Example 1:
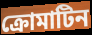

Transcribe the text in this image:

ক্রোমাটিন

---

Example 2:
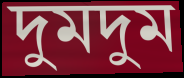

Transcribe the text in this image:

দুমদুম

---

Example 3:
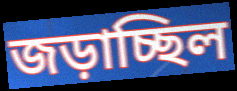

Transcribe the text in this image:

জড়াচ্ছিল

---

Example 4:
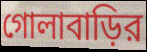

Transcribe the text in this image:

গোলাবাড়ির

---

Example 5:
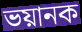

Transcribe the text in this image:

ভয়ানক